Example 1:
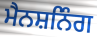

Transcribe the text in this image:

ਮੈਨਸ਼ਨਿੰਗ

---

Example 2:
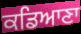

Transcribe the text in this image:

ਕਡਿਆਣਾ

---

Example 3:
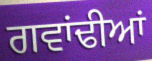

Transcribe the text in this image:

ਗਵਾਂਢੀਆਂ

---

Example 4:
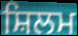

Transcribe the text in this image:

ਸ਼ਿਲਮ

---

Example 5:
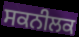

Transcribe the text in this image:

ਸਕਨੀਲਕ